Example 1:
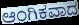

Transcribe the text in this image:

ಆಂಗಿಕವಾದ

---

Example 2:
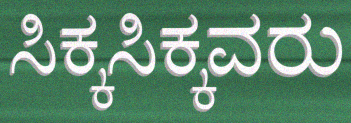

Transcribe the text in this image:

ಸಿಕ್ಕಸಿಕ್ಕವರು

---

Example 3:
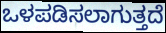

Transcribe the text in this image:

ಒಳಪಡಿಸಲಾಗುತ್ತದೆ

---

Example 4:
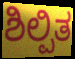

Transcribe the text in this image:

ಶಿಲ್ಪಿತ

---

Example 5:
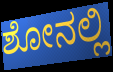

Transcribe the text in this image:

ಶೋನಲ್ಲಿ